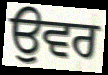
ਉਵਰ